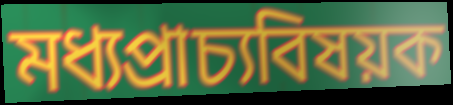
মধ্যপ্রাচ্যবিষয়ক